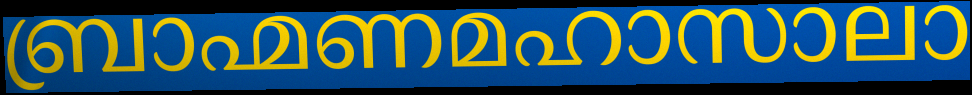
ബ്രാഹ്മണമഹാസാലാ